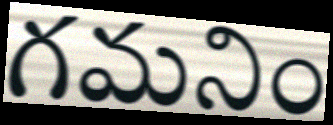
గమనిం